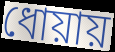
ধোয়ায়